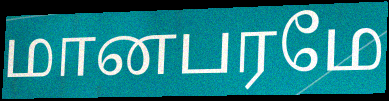
மானபரமே